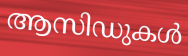
ആസിഡുകൾ